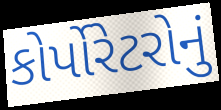
કોર્પોરેટરોનું